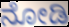
ನೋಡಿ